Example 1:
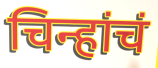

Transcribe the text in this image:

चिन्हांचं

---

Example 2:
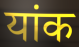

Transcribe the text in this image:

यांक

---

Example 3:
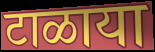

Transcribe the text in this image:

टाळाया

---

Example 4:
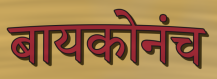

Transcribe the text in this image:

बायकोनंच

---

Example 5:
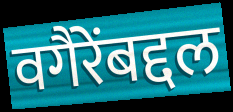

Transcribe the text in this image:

वगैरेंबद्दल